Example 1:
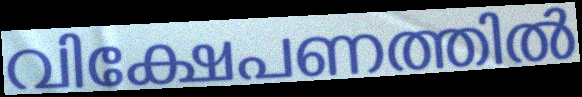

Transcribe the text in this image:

വിക്ഷേപണത്തിൽ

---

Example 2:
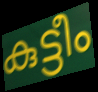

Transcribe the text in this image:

കുട്ടീം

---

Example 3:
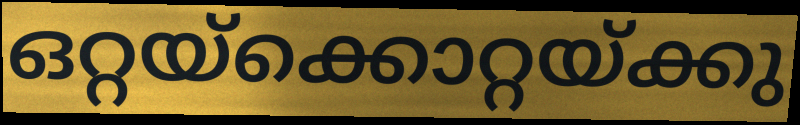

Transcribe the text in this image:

ഒറ്റയ്ക്കൊറ്റയ്ക്കു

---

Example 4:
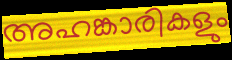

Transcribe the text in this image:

അഹങ്കാരികളും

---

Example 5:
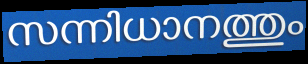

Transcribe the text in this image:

സന്നിധാനത്തും